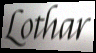
Lothar